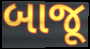
બાજૂ